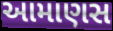
આમાણસ